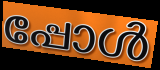
പ്പോൾ